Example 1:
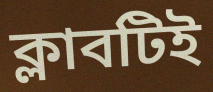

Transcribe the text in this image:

ক্লাবটিই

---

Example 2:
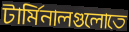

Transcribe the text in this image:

টার্মিনালগুলোতে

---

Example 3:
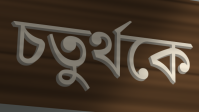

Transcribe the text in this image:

চতুর্থকে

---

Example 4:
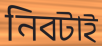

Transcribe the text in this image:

নিবটাই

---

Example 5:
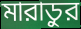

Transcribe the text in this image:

মারাডুর